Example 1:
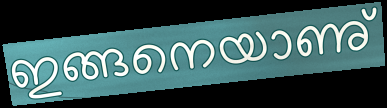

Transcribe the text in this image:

ഇങ്ങനെയാണു്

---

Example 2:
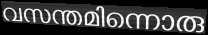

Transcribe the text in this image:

വസന്തമിന്നൊരു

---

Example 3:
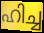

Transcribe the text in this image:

ഹിച്ച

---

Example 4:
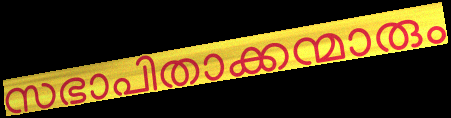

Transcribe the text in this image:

സഭാപിതാക്കന്മാരും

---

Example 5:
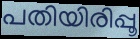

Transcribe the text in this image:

പതിയിരിപ്പൂ